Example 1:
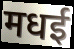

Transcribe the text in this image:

मधई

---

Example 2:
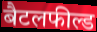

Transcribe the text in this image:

बैटलफील्ड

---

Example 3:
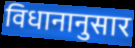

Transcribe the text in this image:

विधानानुसार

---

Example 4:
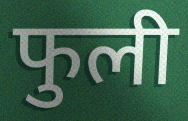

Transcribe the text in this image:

फुली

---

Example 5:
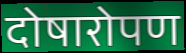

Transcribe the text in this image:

दोषारोपण